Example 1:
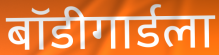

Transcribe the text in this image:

बॉडीगार्डला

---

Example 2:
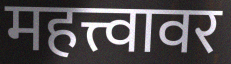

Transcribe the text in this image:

महत्त्वावर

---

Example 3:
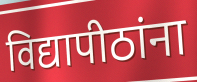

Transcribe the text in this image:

विद्यापीठांना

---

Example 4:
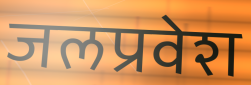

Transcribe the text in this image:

जलप्रवेश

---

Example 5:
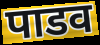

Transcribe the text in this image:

पाडव